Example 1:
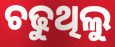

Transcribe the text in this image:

ଚଢୁଥିଲୁ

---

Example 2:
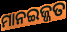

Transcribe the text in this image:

ମାନଇଜ୍ଜତ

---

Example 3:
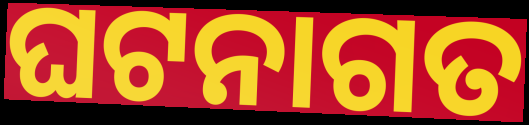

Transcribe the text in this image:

ଘଟନାଗତ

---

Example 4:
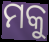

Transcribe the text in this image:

ମକୁ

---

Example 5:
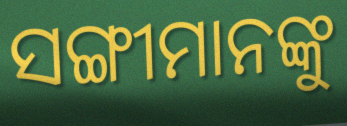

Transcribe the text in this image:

ସଙ୍ଗୀମାନଙ୍କୁ